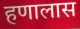
हणालास